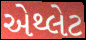
એથ્લેટ